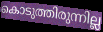
കൊടുത്തിരുന്നില്ല